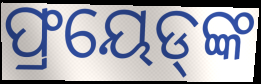
ଫ୍ରୟେଡ୍‍ଙ୍କ